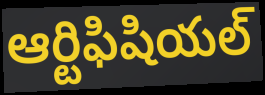
ఆర్టిఫిషియల్